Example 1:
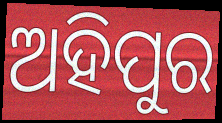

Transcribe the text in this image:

ଅହିପୁର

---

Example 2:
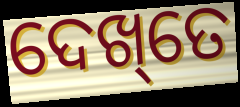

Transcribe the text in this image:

ଦେଖ୍‌ତେ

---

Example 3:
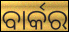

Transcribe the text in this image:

ବାର୍କର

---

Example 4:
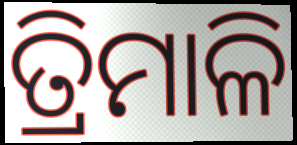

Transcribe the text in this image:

ତ୍ରିମାଳି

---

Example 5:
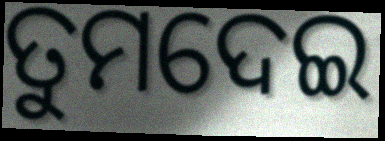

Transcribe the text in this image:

ତୁମଦେଇ